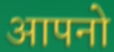
आपनो